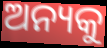
ଅନ୍ୟକୁ